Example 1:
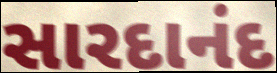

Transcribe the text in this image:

સારદાનંદ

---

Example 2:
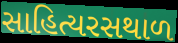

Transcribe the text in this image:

સાહિત્યરસથાળ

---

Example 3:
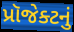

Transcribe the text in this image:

પ્રૉજેક્ટનું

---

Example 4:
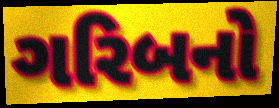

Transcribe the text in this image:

ગરિબનો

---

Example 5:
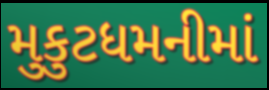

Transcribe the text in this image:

મુકુટધમનીમાં